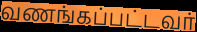
வணங்கப்பட்டவர்